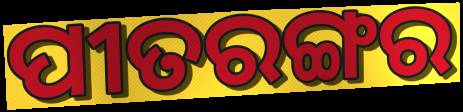
ପୀତରଙ୍ଗର